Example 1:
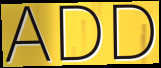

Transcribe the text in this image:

ADD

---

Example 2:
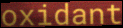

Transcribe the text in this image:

oxidant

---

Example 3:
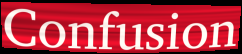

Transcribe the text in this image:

Confusion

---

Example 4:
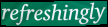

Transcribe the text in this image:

refreshingly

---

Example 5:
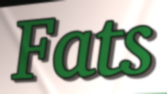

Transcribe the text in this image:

Fats